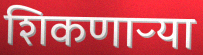
शिकणाऱ्या